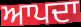
ਆਪਦਾ